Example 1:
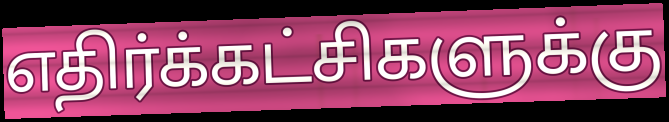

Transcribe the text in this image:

எதிர்க்கட்சிகளுக்கு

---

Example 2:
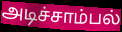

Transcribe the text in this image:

அடிச்சாம்பல்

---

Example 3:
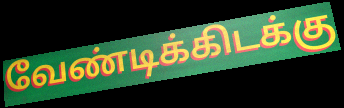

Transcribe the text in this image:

வேண்டிக்கிடக்கு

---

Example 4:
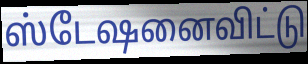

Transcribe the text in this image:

ஸ்டேஷனைவிட்டு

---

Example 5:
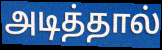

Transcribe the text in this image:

அடித்தால்